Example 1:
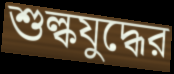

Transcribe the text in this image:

শুল্কযুদ্ধের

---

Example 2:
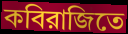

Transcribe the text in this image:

কবিরাজিতে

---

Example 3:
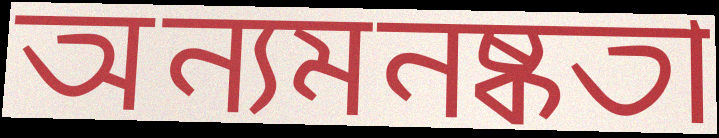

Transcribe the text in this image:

অন্যমনষ্কতা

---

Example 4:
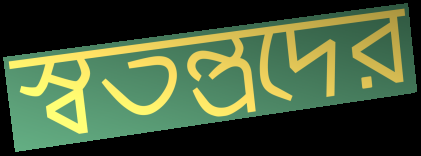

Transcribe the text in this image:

স্বতন্ত্রদের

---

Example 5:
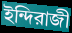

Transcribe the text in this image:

ইন্দিরাজী